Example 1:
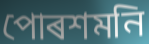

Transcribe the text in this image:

পোৰশমনি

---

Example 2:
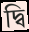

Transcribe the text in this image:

দ্বি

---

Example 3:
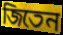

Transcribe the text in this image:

জিতেন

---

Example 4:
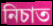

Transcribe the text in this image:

নিচাত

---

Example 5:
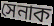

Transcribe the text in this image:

সেনাক